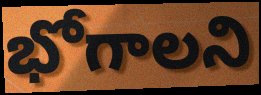
భోగాలని